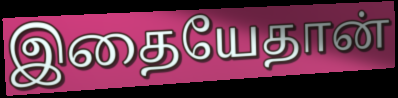
இதையேதான்